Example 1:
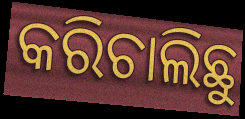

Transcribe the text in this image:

କରିଚାଲିଛୁ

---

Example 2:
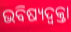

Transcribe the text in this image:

ଭବିଷ୍ୟଦ୍ବକ୍ତା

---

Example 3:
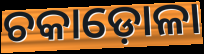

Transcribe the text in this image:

ଚକାଡ଼ୋଳା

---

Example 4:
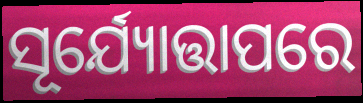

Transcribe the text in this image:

ସୂର୍ଯ୍ୟୋତ୍ତାପରେ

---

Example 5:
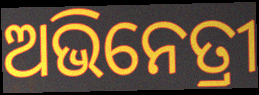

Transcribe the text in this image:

ଅଭିନେତ୍ରୀ